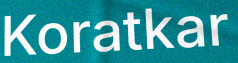
Koratkar